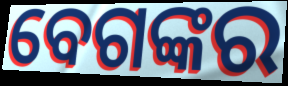
ବେଗଙ୍କର